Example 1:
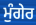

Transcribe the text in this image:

ਮੁੰਗੇਰ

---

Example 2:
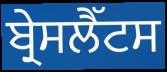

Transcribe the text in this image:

ਬ੍ਰੇਸਲੈੱਟਸ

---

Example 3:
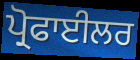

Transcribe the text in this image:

ਪ੍ਰੋਫਾਈਲਰ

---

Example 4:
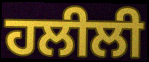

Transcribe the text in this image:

ਹਲੀਲੀ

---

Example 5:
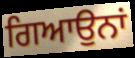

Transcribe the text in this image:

ਗਿਆਉਨਾਂ